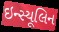
ઇન્સ્યૂલિન